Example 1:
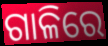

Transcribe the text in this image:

ଗାଳିରେ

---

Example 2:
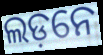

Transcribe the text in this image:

ଲଡ଼ନେ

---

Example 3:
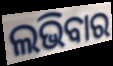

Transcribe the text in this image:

ଲଭିବାର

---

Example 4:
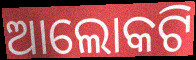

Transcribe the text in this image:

ଆଲୋକଟି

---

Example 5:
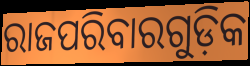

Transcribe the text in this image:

ରାଜପରିବାରଗୁଡ଼ିକ